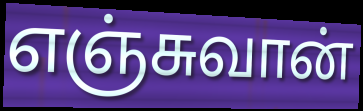
எஞ்சுவான்